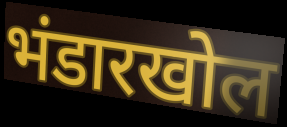
भंडारखोल